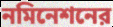
নমিনেশনের